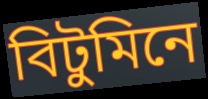
বিটুমিনে